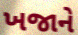
ખજાને